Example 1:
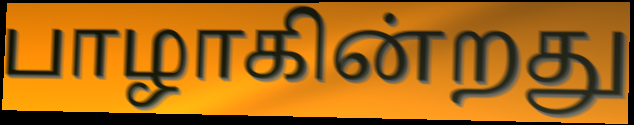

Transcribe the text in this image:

பாழாகின்றது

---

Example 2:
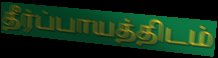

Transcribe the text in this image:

தீர்ப்பாயத்திடம்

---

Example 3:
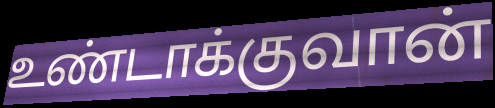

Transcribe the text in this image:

உண்டாக்குவான்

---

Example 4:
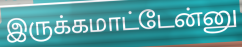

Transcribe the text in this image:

இருக்கமாட்டேன்னு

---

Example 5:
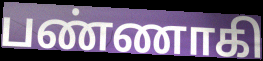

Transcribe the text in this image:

பண்ணாகி